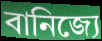
বানিজ্যে